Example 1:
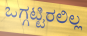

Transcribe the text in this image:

ಒಗ್ಗಟ್ಟಿರಲಿಲ್ಲ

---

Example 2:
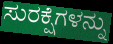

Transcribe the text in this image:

ಸುರಕ್ಷೆಗಳನ್ನು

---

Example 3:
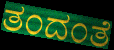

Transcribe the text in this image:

ತಂದಂತೆ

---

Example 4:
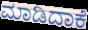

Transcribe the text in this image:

ಮಾಡಿದಾಕೆ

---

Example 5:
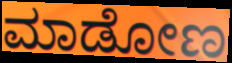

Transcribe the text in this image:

ಮಾಡೋಣ